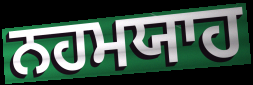
ਨਹਮਯਾਹ